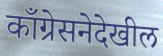
काँग्रेसनेदेखील